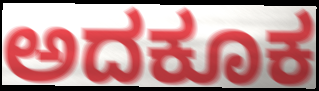
ಅದಕೂಕ